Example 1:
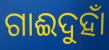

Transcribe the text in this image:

ଗାଈଦୁହାଁ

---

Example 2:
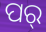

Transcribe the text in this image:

ପର୍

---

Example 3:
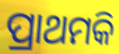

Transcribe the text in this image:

ପ୍ରାଥମକି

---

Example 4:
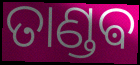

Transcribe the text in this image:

ତାଣ୍ଡଵ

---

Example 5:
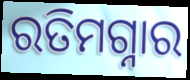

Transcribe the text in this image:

ରତିମଗ୍ନାର